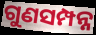
ଗୁଣସମ୍ପନ୍ନ